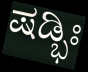
ಷಡ್ಭಿಃ